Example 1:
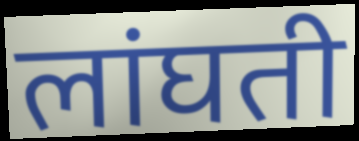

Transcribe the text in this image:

लांघती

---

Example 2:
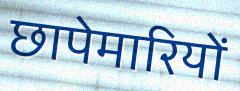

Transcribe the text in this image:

छापेमारियों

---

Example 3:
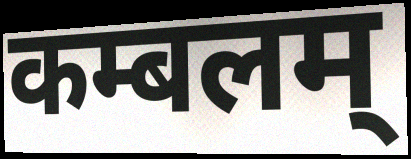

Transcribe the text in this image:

कम्बलम्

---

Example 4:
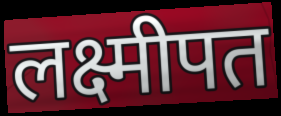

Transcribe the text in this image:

लक्ष्मीपत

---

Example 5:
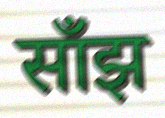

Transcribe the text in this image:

साँझ